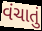
વંચાતું